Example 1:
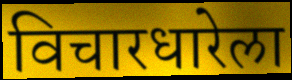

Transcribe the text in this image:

विचारधारेला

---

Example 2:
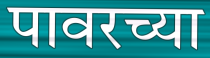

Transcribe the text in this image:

पावरच्या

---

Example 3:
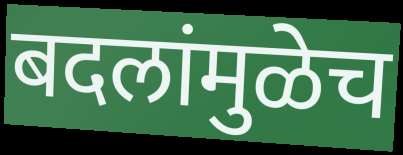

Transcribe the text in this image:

बदलांमुळेच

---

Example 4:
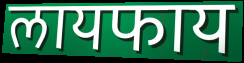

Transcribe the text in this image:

लायफाय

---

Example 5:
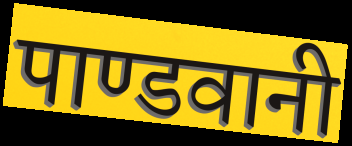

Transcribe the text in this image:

पाण्डवानी